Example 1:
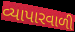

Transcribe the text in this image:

વ્યાપારવાળી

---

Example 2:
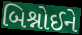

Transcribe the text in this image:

બિશ્નોઈને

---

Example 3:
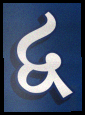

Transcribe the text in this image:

દ્વ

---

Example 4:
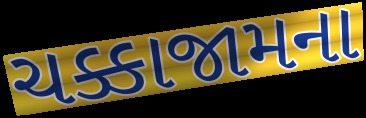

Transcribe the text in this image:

ચક્કાજામના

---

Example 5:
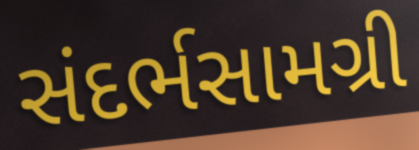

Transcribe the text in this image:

સંદર્ભસામગ્રી